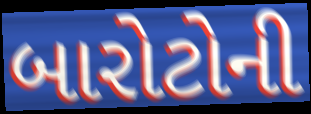
બારોટોની